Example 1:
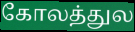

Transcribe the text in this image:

கோலத்துல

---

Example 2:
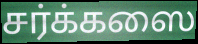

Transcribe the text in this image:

சர்க்கஸை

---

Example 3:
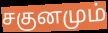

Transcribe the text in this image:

சகுனமும்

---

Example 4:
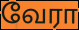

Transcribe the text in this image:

வேரா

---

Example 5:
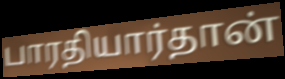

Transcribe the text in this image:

பாரதியார்தான்